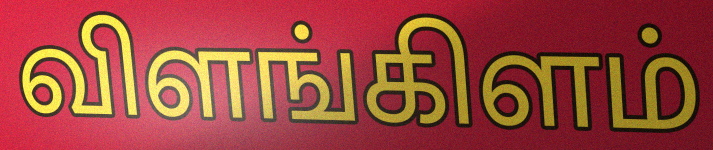
விளங்கிளம்